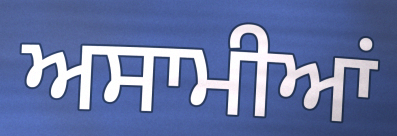
ਅਸਾਮੀਆਂ